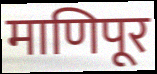
माणिपूर